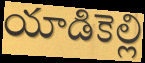
యాడికెల్లి